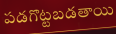
పడగొట్టబడతాయి